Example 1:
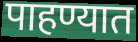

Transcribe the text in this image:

पाहण्यात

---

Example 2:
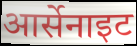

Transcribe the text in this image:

आर्सेनाइट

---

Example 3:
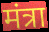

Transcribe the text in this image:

मंत्रा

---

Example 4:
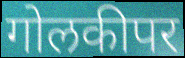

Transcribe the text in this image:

गोलकीपर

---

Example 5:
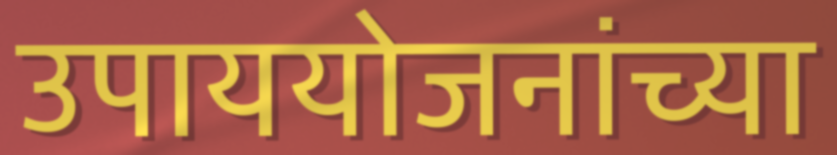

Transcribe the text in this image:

उपाययोजनांच्या